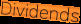
Dividends